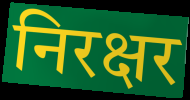
निरक्षर